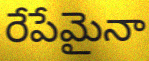
రేపేమైనా